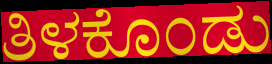
ತಿಳಕೊಂಡು